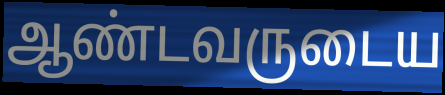
ஆண்டவருடைய